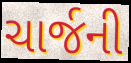
ચાર્જની